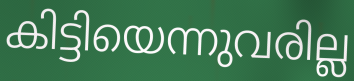
കിട്ടിയെന്നുവരില്ല